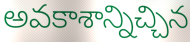
అవకాశాన్నిచ్చిన